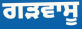
ਗੜਵਾਸੂ